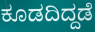
ಕೂಡದಿದ್ದಡೆ